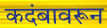
कदंबावरून